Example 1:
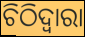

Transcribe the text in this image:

ଚିଠିଦ୍ୱାରା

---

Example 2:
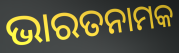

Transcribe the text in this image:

ଭାରତନାମକ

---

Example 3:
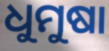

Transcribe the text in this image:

ଧୁମୁଷା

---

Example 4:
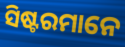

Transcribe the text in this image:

ସିଷ୍ଟରମାନେ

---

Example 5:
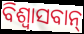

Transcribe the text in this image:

ବିଶ୍ଵାସବାନ୍